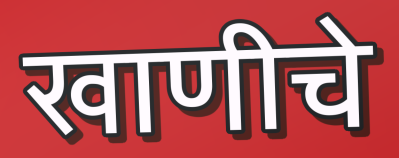
खाणीचे